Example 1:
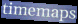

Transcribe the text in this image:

timemaps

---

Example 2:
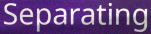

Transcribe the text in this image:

Separating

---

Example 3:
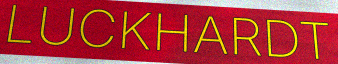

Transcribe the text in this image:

LUCKHARDT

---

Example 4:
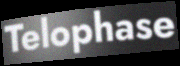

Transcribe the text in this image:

Telophase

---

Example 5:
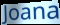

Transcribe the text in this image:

Joana